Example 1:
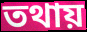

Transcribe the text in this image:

তথায়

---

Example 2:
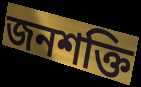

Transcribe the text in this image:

জনশক্তি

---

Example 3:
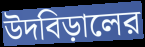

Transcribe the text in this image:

উদবিড়ালের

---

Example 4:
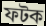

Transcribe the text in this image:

ফটক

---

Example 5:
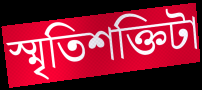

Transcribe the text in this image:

স্মৃতিশক্তিটা